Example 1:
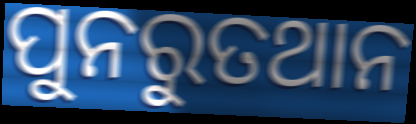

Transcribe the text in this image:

ପୁନରୁତଥାନ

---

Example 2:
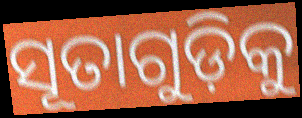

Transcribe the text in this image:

ସୂତାଗୁଡ଼ିକୁ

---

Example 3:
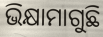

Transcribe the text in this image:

ଭିକ୍ଷାମାଗୁଛି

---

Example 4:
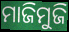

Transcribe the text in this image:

ମାଜିମୁଜି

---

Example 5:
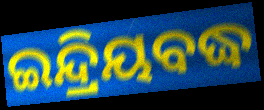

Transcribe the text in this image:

ଇନ୍ଦ୍ରିୟବଦ୍ଧ